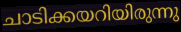
ചാടിക്കയറിയിരുന്നു